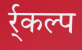
र्र्कल्प